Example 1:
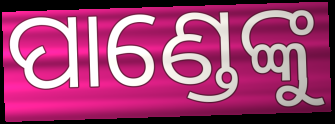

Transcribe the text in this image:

ପାଣ୍ଡେଙ୍କୁ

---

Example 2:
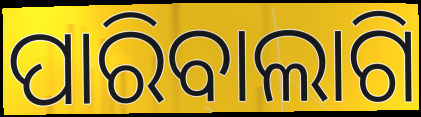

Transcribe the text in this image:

ପାରିବାଲାଗି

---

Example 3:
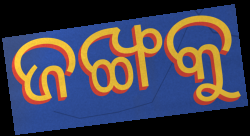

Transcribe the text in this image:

ଜଙ୍ଖକୁ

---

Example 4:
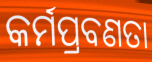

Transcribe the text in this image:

କର୍ମପ୍ରବଣତା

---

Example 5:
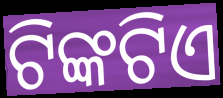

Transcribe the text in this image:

ଟିଙ୍କଟିଏ